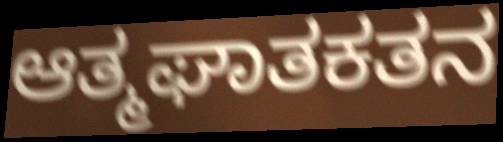
ಆತ್ಮಘಾತಕತನ